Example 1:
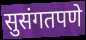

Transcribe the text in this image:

सुसंगतपणे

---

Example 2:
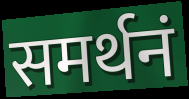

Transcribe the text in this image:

समर्थनं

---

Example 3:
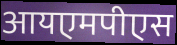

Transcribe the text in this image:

आयएमपीएस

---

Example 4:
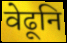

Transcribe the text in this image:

वेढूनि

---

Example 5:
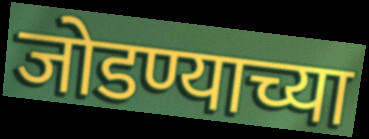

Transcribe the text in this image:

जोडण्याच्या